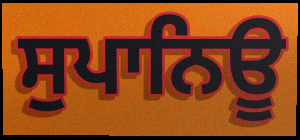
ਸੁਪਾਨਿਊ